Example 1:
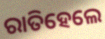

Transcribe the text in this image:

ରାତିହେଲେ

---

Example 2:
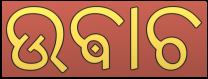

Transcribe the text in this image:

ଉଵାଚ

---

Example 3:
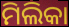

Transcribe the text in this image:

ମିଲିକା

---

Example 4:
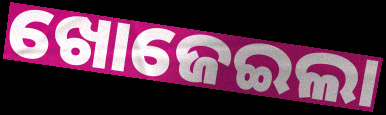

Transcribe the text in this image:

ଖୋଜେଇଲା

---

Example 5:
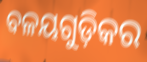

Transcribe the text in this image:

ବଳୟଗୁଡ଼ିକର